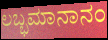
ಲಬ್ಭಮಾನಾನಂ